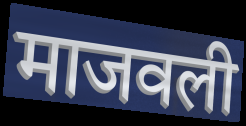
माजवली